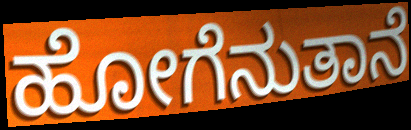
ಹೋಗೆನುತಾನೆ